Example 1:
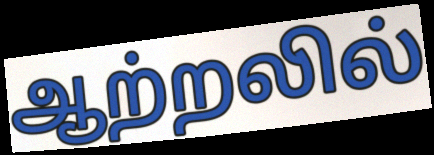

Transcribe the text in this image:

ஆற்றலில்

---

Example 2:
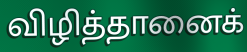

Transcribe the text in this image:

விழித்தானைக்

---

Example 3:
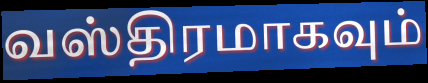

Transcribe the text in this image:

வஸ்திரமாகவும்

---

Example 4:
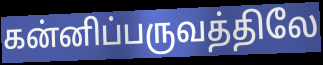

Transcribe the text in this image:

கன்னிப்பருவத்திலே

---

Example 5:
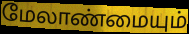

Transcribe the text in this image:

மேலாண்மையும்